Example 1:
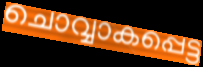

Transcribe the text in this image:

ചൊവ്വാകപ്പെട്ട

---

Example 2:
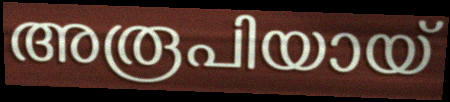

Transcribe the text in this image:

അരൂപിയായ്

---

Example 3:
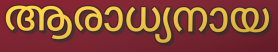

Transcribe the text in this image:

ആരാധ്യനായ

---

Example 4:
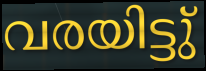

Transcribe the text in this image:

വരയിട്ടു്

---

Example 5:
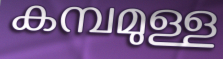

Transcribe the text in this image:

കമ്പമുള്ള